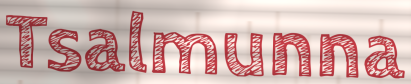
Tsalmunna